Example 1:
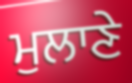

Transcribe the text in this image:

ਮੁਲਾਣੇ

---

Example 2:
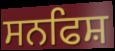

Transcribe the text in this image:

ਸਨਫਿਸ਼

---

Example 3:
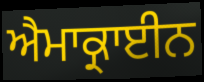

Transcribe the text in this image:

ਐਮਾਕ੍ਰਾਈਨ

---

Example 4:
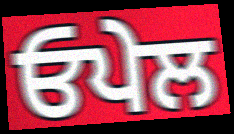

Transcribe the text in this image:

ਓਪੇਲ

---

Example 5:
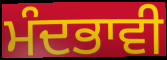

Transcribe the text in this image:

ਮੰਦਭਾਵੀ